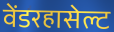
वेंडरहासेल्ट